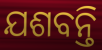
ଯଶବନ୍ତି